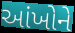
આંખોને